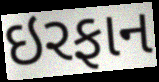
ઇરફાન